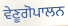
ਵੇਣੂਗੋਪਾਲਨ